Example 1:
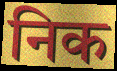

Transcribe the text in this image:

निक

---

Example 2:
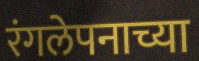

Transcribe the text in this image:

रंगलेपनाच्या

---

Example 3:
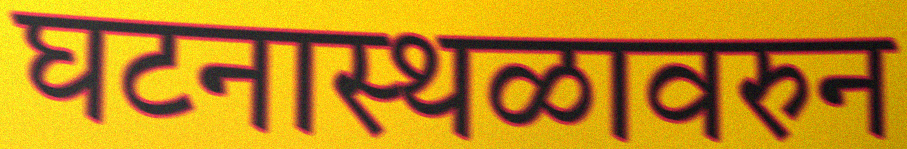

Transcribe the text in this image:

घटनास्थळावरुन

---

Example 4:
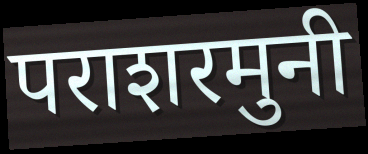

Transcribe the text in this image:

पराशरमुनी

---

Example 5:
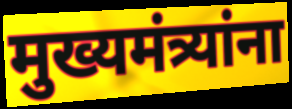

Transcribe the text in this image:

मुख्यमंत्र्यांना